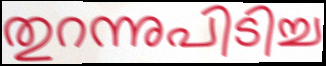
തുറന്നുപിടിച്ച